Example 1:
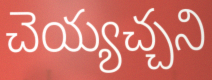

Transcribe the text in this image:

చెయ్యచ్చని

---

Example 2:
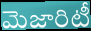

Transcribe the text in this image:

మెజారిటీ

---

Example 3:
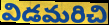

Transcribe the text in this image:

విడమరిచి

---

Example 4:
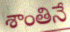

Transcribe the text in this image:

శాంతినే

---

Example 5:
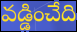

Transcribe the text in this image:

వడ్డించేది